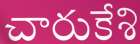
చారుకేశి